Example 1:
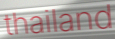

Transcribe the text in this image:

thailand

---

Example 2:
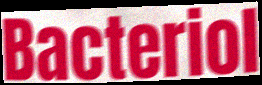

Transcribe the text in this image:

Bacteriol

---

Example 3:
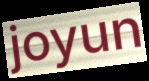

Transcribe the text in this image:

joyun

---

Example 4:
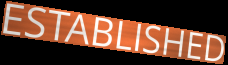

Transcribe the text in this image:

ESTABLISHED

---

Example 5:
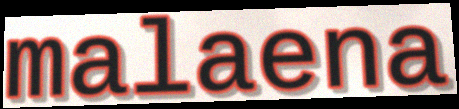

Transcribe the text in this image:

malaena